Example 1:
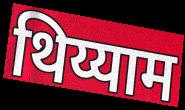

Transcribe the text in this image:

थिय्याम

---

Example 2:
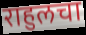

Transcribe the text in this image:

राहुलचा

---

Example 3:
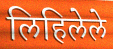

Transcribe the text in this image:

लिहिलेले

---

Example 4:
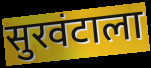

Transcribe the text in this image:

सुरवंटाला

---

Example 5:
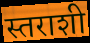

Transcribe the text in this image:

स्तराशी